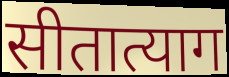
सीतात्याग